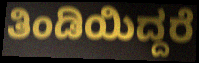
ತಿಂಡಿಯಿದ್ದರೆ